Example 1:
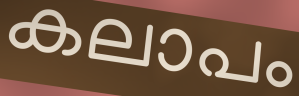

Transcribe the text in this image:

കലാപം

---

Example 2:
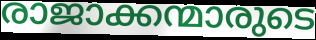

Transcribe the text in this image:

രാജാക്കന്മാരുടെ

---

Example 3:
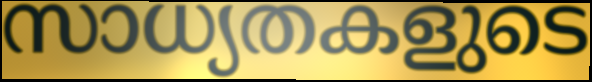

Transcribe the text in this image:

സാധ്യതകളുടെ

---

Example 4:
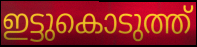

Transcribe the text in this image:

ഇട്ടുകൊടുത്ത്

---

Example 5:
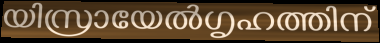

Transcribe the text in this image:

യിസ്രായേൽഗൃഹത്തിന്